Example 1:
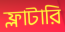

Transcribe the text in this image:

ফ্লাটারি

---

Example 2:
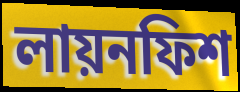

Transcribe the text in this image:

লায়নফিশ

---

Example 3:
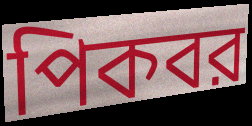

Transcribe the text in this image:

পিকবর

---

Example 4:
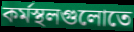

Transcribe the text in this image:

কর্মস্থলগুলোতে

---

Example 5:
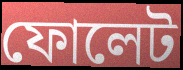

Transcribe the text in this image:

ফোলেট